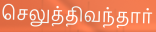
செலுத்திவந்தார்